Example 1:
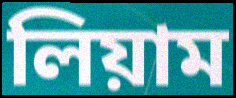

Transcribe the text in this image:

লিয়াম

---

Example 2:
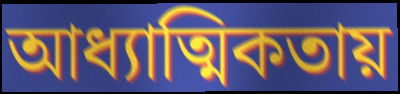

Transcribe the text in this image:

আধ্যাত্মিকতায়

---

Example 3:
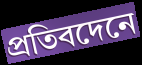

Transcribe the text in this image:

প্রতিবদেনে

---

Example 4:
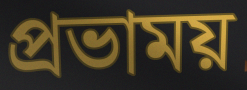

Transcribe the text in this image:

প্রভাময়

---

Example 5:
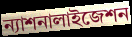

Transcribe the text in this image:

ন্যাশনালাইজেশন